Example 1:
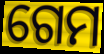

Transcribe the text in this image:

ଗେମ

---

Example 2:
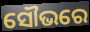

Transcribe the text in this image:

ସୌଭରେ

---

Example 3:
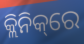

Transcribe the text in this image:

କ୍ଲିନିକ୍‌ରେ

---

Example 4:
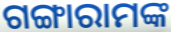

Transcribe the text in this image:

ଗଙ୍ଗାରାମଙ୍କ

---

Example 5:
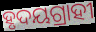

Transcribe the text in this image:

ହୃଦୟଗ୍ରାହୀ